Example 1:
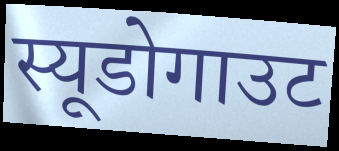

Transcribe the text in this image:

स्यूडोगाउट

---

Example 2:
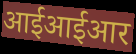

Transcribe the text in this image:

आईआईआर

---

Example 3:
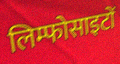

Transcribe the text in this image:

लिम्फोसाइटों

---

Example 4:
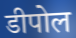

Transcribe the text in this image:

डीपोल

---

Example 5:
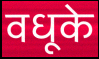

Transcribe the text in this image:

वधूके